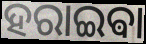
ହରାଇଵା